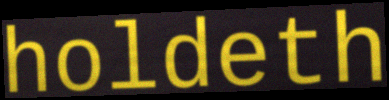
holdeth